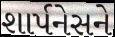
શાર્પનેસને